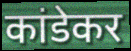
कांडेकर